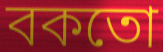
বকতো